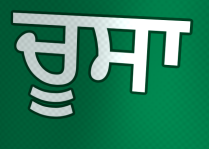
ਚੂਸਾ